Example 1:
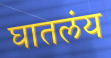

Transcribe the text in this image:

घातलंय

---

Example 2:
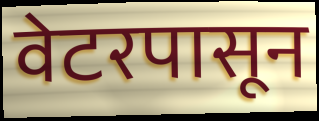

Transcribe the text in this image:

वेटरपासून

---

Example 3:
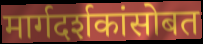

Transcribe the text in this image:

मार्गदर्शकांसोबत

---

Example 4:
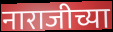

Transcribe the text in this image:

नाराजीच्या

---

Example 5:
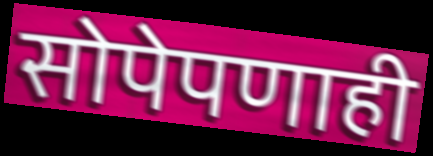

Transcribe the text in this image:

सोपेपणाही